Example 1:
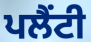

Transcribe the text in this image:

ਪਲੈਂਟੀ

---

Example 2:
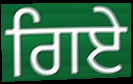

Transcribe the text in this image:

ਗਿਏ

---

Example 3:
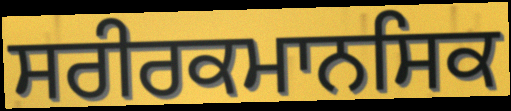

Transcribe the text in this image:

ਸਰੀਰਕਮਾਨਸਿਕ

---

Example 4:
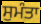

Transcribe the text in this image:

ਸੁਮੰਤਾ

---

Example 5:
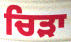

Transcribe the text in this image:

ਚਿੜਾ